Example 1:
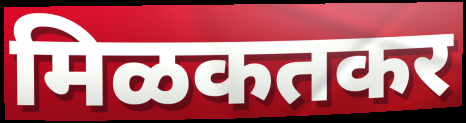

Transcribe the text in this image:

मिळकतकर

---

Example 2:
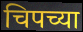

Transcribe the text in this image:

चिपच्या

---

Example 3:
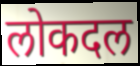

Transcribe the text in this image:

लोकदल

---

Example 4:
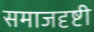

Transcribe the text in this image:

समाजदृष्टी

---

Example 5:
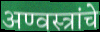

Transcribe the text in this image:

अण्वस्त्रांचे